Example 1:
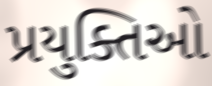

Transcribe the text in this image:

પ્રયુક્તિઓ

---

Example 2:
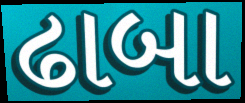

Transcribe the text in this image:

ઢાબા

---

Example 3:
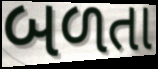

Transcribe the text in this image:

બળતા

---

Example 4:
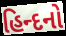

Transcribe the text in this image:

હિન્દનો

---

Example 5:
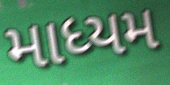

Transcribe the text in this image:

માધ્યમ